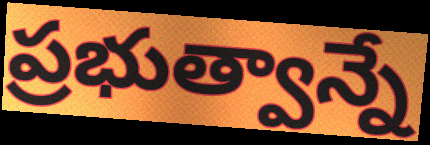
ప్రభుత్వాన్నే